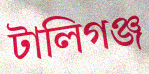
টালিগঞ্জ